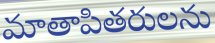
మాతాపితరులను